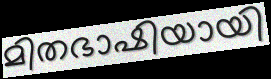
മിതഭാഷിയായി